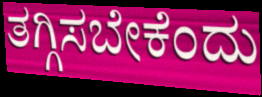
ತಗ್ಗಿಸಬೇಕೆಂದು